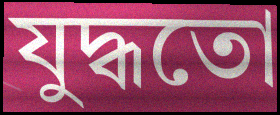
যুদ্ধতো